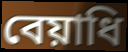
বেয়াধি